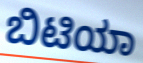
ಬಿಟಿಯಾ